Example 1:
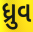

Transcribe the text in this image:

ધ્રુવ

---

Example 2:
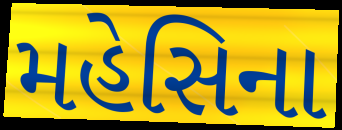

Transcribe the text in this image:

મહેસિના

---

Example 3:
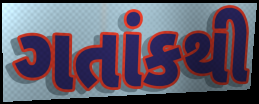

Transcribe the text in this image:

ગતાંકથી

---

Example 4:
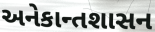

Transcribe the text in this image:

અનેકાન્તશાસન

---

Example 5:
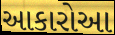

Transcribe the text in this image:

આકારોઆ